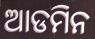
ଆଡମିନ